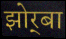
झोर्बा